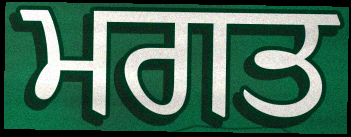
ਮਗਤ